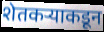
शेतकऱ्याकडून